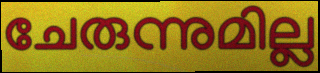
ചേരുന്നുമില്ല